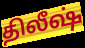
திலீஷ்